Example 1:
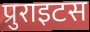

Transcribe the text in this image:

प्रुराइटस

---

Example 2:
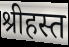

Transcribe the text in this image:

श्रीहस्त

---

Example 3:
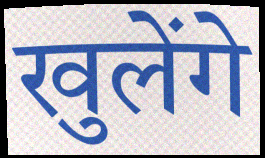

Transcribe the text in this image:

खुलेंगे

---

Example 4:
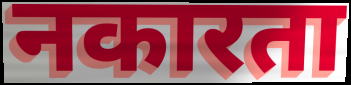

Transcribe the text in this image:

नकारता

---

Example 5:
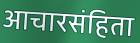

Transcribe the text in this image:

आचारसंहिता